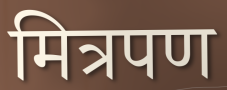
मित्रपण